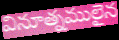
వినూత్నములైన